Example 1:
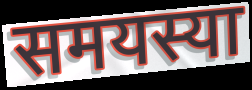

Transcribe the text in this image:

समयस्या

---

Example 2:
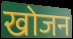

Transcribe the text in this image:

खोजन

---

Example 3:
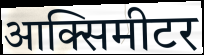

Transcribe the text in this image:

आक्सिमीटर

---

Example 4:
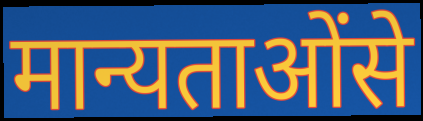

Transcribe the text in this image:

मान्यताओंसे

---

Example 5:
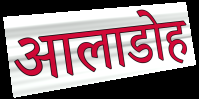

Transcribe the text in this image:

आलाडोह